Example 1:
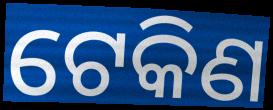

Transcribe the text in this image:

ଟେକିଣ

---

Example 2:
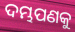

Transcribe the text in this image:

ଦମ୍ଭପଣକୁ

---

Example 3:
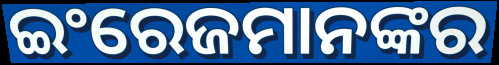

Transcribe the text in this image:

ଇଂରେଜମାନଙ୍କର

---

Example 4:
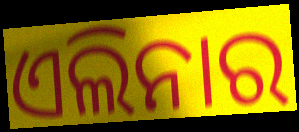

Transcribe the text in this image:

ଏଲିନାର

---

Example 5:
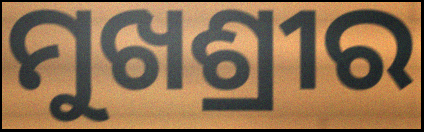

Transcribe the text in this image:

ମୁଖଶ୍ରୀର